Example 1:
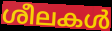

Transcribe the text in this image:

ശീലകൾ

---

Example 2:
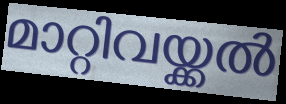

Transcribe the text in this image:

മാറ്റിവയ്ക്കൽ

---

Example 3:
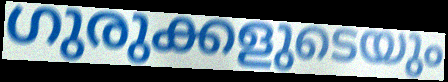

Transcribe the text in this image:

ഗുരുക്കളുടെയും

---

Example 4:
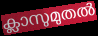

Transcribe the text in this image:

ക്ലാസുമുതൽ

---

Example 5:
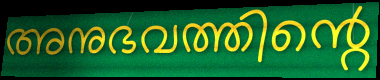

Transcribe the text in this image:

അനുഭവത്തിന്റെ